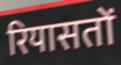
रियासतों